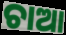
ଚାଆ